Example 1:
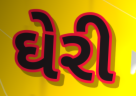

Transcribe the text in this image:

ઘેરી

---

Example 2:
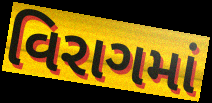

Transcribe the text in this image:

વિરાગમાં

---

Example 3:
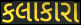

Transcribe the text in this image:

કલાકારા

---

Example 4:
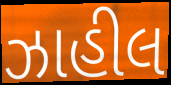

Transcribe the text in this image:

ઝાહીલ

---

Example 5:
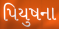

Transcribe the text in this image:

પિયુષના